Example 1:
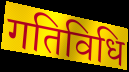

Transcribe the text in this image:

गतिविधि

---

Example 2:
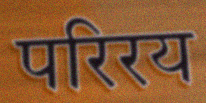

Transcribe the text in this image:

परिरय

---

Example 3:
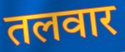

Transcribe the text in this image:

तलवार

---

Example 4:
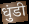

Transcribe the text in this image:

धुंडी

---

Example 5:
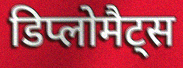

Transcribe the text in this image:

डिप्लोमैट्स